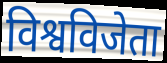
विश्वविजेता